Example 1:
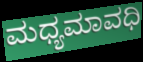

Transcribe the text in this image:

ಮಧ್ಯಮಾವಧಿ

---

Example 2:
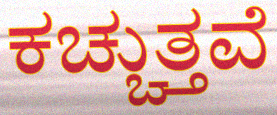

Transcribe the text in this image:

ಕಚ್ಚುತ್ತವೆ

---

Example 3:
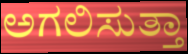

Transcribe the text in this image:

ಅಗಲಿಸುತ್ತಾ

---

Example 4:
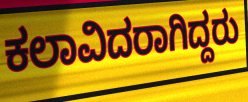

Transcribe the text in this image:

ಕಲಾವಿದರಾಗಿದ್ದರು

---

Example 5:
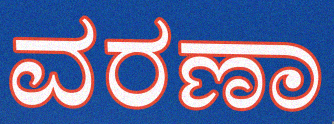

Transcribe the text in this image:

ವರಣಾ